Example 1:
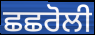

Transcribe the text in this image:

ਛਛਰੋਲੀ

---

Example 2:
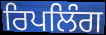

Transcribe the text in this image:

ਰਿਪਲਿੰਗ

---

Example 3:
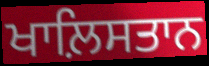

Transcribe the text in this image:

ਖਾਲ਼ਿਸਤਾਨ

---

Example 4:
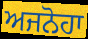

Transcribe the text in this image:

ਅਜਨੋਹਾ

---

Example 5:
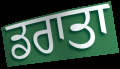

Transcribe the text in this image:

ਡਰਾਤਾ